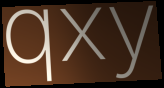
qxy